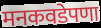
मनकवडेपणा